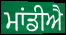
ਮਾਂਡੀਐ